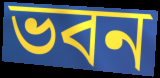
ভবন